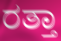
ರತ್ತಾ